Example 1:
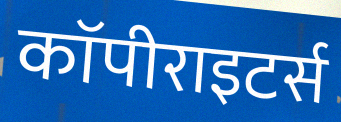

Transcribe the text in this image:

कॉपीराइटर्स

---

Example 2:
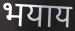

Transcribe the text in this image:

भयाय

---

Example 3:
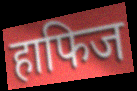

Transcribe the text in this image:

हाफिज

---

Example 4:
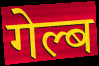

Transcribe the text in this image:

गेल्ब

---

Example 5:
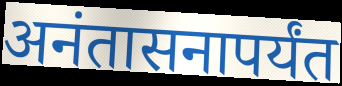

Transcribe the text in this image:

अनंतासनापर्यंत